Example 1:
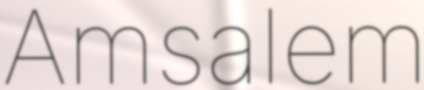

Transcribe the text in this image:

Amsalem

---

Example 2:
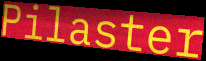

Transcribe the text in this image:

Pilaster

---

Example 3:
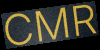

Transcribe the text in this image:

CMR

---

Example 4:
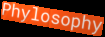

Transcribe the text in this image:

Phylosophy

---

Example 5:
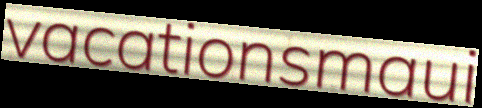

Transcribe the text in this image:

vacationsmaui